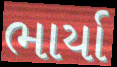
ભાર્યા